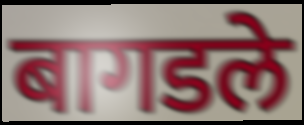
बागडले